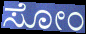
ಸೋಂ